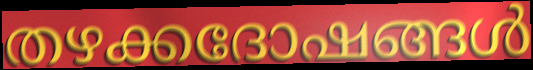
തഴക്കദോഷങ്ങൾ